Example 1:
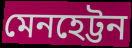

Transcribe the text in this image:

মেনহেট্টন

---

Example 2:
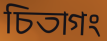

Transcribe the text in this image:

চিতাগং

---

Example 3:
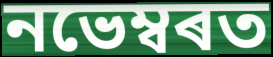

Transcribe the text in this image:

নভেম্বৰত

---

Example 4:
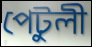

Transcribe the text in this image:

পেটুলী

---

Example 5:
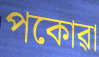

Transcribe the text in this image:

পকোৱা